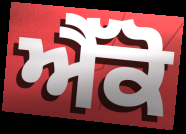
ਐੱਕੋ